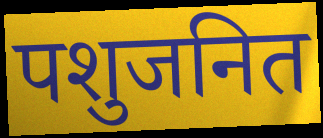
पशुजनित